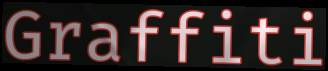
Graffiti